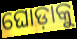
ଘୋଡ଼ାକୁ